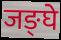
जङ्घे